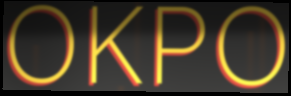
OKPO